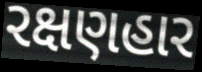
રક્ષણહાર